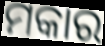
ମକାର